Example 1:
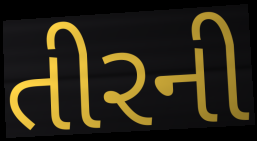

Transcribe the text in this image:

તીરની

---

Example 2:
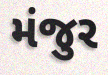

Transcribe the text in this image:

મંજુર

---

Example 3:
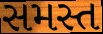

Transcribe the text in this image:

સમસ્ત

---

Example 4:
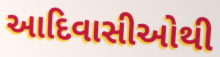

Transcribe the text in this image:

આદિવાસીઓથી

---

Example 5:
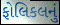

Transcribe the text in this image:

ફોલિકલનું